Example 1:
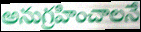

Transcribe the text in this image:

అనుగ్రహించాలనే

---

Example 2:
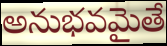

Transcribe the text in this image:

అనుభవమైతే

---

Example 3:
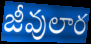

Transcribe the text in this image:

జీవులార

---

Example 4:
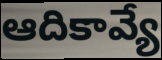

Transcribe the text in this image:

ఆదికావ్యే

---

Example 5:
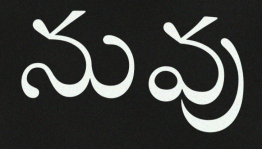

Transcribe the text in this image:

నువు